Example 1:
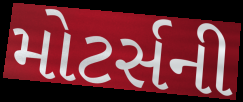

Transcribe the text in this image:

મોટર્સની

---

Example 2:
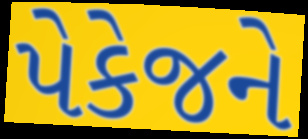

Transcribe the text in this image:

પેકેજને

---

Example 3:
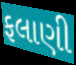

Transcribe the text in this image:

ફલાણી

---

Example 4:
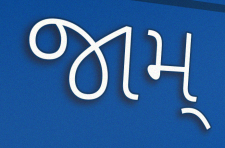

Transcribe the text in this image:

જામ્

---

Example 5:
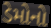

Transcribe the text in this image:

ડેમોનો